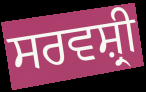
ਸਰਵਸ਼੍ਰੀ